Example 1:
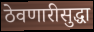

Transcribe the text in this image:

ठेवणारीसुद्धा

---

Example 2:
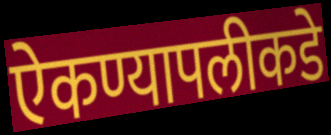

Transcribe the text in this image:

ऐकण्यापलीकडे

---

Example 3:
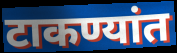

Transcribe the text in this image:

टाकण्यांत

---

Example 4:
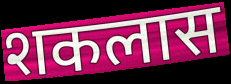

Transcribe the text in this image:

शकलास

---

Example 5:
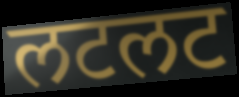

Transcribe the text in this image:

लटलट